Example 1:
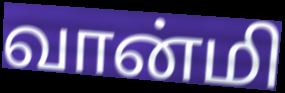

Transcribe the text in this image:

வான்மி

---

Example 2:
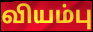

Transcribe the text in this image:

வியம்பு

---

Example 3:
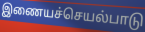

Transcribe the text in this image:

இணையச்செயல்பாடு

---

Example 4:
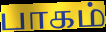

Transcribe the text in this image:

பாகம்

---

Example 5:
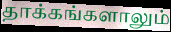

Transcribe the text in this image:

தாக்கங்களாலும்